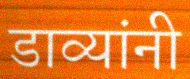
डाव्यांनी